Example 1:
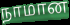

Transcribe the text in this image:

நாமான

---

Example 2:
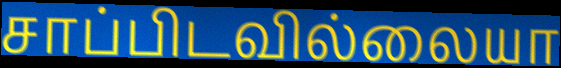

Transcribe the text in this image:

சாப்பிடவில்லையா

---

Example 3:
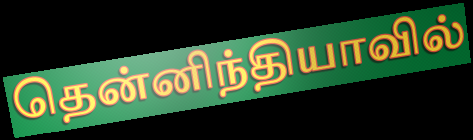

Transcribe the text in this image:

தென்னிந்தியாவில்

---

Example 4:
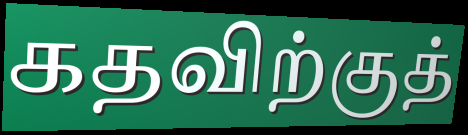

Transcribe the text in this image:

கதவிற்குத்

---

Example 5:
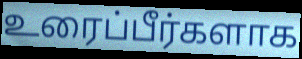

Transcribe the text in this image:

உரைப்பீர்களாக